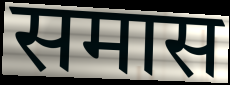
समास